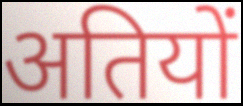
अतियों